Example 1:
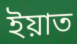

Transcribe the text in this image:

ইয়াত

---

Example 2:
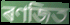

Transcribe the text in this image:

ৰণজিত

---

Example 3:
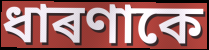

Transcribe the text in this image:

ধাৰণাকে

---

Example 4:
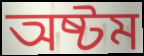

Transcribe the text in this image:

অষ্টম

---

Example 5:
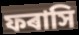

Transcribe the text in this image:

ফৰাসি